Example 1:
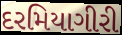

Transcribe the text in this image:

દરમિયાગીરી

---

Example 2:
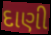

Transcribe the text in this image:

દાણી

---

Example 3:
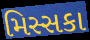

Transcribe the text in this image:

મિસ્સકા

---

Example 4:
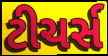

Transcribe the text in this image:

ટીચર્સ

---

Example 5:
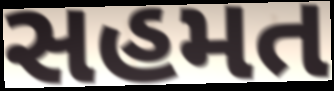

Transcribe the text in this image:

સહમત